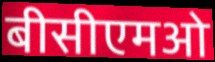
बीसीएमओ